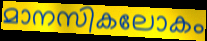
മാനസികലോകം